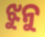
ଝୁନୁ